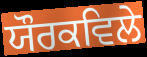
ਯੌਰਕਵਿਲੇ